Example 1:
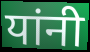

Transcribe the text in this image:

यांनी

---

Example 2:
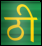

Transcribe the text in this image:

ठी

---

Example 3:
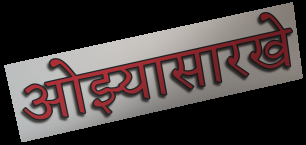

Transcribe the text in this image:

ओझ्यासारखे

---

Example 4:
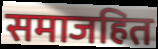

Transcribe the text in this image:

समाजहित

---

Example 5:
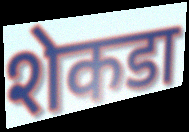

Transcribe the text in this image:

शेकडा